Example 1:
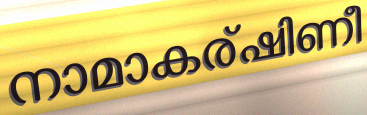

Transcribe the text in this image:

നാമാകര്ഷിണീ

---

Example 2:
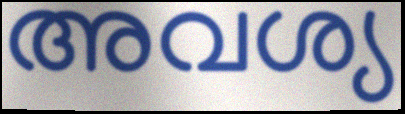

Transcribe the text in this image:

അവശ്യ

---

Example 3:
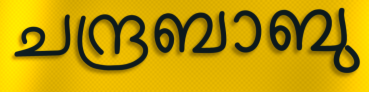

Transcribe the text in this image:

ചന്ദ്രബാബു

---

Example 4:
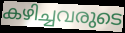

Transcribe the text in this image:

കഴിച്ചവരുടെ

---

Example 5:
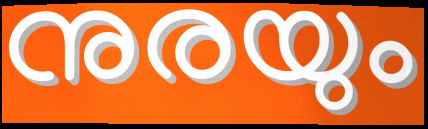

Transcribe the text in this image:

നുരയും